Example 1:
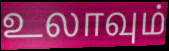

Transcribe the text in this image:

உலாவும்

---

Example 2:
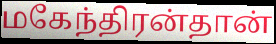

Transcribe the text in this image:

மகேந்திரன்தான்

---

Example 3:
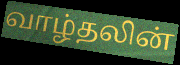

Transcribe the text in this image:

வாழ்தலின்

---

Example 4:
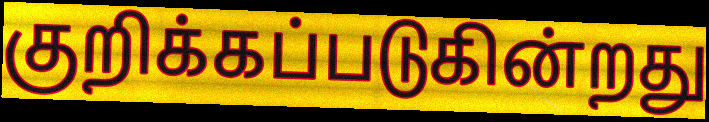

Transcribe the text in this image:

குறிக்கப்படுகின்றது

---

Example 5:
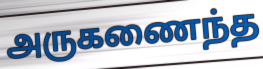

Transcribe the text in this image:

அருகணைந்த